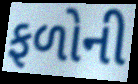
ફળોની